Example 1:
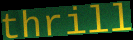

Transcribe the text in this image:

thrill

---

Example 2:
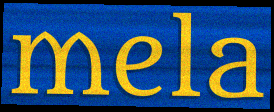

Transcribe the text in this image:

mela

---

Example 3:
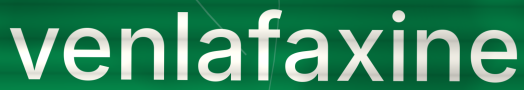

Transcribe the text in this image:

venlafaxine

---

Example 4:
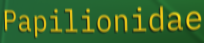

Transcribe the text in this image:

Papilionidae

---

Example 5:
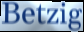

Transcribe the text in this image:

Betzig